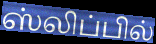
ஸ்லிப்பில்